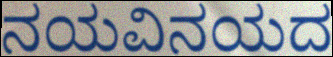
ನಯವಿನಯದ